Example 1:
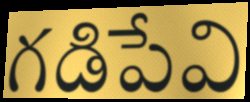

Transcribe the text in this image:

గడిపేవి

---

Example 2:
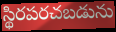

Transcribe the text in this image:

స్థిరపరచబడును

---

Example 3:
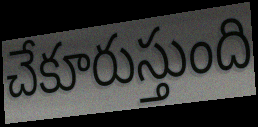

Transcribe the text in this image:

చేకూరుస్తుంది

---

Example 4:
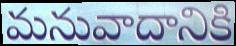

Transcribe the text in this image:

మనువాదానికి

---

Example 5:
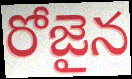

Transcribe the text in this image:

రోజైన